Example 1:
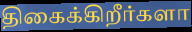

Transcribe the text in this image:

திகைக்கிறீர்களா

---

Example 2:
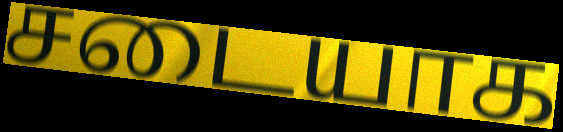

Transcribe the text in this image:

சடையாக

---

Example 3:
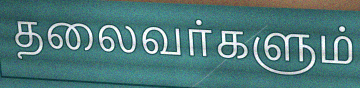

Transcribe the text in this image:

தலைவர்களும்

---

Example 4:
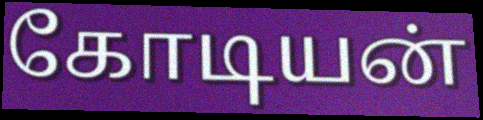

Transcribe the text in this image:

கோடியன்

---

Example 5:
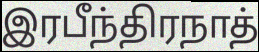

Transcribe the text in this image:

இரபீந்திரநாத்